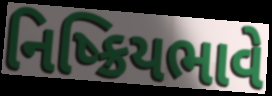
નિષ્ક્રિયભાવે